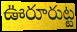
ఊరూరుట్ట